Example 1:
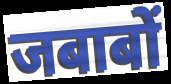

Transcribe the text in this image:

जबाबों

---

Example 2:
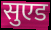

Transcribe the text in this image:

सुएड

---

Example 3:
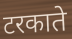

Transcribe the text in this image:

टरकाते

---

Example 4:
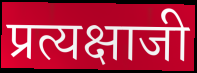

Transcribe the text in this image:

प्रत्यक्षाजी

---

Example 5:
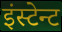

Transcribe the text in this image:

इंस्टेन्ट